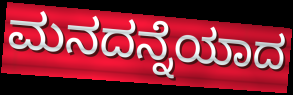
ಮನದನ್ನೆಯಾದ